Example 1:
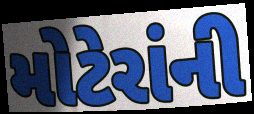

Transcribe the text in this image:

મોટેરાંની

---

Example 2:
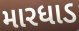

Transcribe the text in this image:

મારધાડ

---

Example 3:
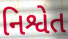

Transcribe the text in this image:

નિશ્વેત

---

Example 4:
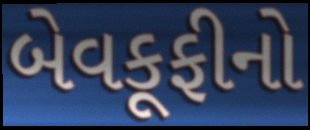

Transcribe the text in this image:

બેવકૂફીનો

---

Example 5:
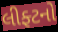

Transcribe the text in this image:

લીફ્ટનો